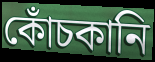
কোঁচকানি